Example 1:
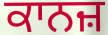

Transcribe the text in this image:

ਕਾਨਜ਼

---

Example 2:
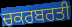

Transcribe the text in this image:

ਚਕਰਬਰਤੀ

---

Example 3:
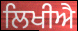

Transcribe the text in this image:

ਲਿਖੀਐ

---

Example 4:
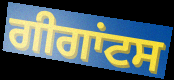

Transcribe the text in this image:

ਗੀਗਾਂਟਸ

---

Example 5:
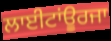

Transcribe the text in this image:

ਲਾਈਟਾਂਊਰਜਾ